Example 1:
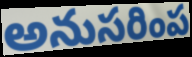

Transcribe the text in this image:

అనుసరింప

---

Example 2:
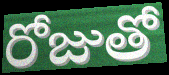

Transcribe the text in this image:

రోజుతో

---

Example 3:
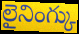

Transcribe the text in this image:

లైనింగ్కు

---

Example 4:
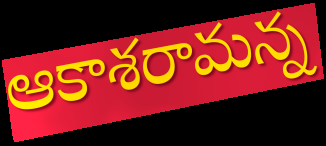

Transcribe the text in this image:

ఆకాశరామన్న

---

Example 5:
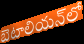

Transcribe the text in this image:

బెటాలియన్‌లో